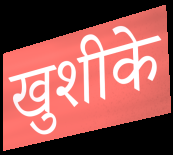
खुशीके